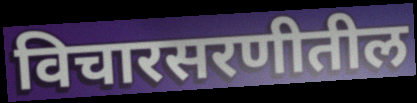
विचारसरणीतील